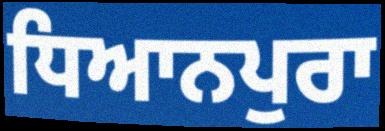
ਧਿਆਨਪੁਰਾ